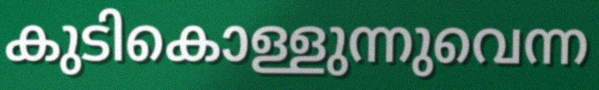
കുടികൊള്ളുന്നുവെന്ന